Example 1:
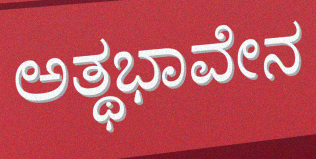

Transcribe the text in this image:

ಅತ್ಥಭಾವೇನ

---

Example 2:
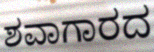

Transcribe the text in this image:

ಶವಾಗಾರದ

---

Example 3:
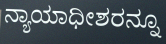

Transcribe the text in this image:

ನ್ಯಾಯಾಧೀಶರನ್ನೂ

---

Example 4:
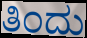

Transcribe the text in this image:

ತಿಂದು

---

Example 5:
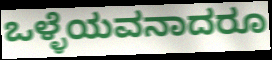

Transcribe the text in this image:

ಒಳ್ಳೆಯವನಾದರೂ